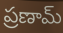
ప్రణామ్